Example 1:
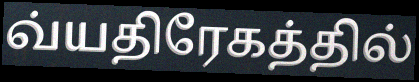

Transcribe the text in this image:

வ்யதிரேகத்தில்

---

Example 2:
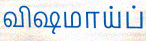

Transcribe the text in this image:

விஷமாய்ப்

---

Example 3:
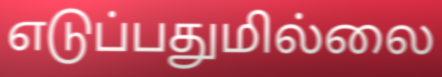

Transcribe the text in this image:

எடுப்பதுமில்லை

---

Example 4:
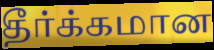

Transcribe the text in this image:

தீர்க்கமான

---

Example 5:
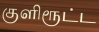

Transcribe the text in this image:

குளிரூட்ட